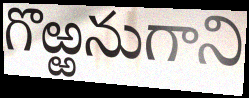
గొఱ్ఱనుగాని